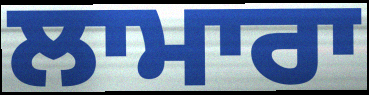
ਲਾਮਾਰਾ